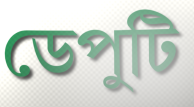
ডেপুটি